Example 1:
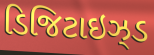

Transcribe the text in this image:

ડિજિટાઇઝ્ડ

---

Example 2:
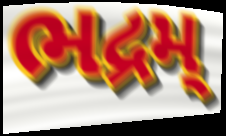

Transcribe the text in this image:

ભદ્રમ્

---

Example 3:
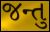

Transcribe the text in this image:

જન્તુ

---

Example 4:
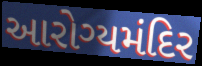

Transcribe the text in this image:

આરોગ્યમંદિર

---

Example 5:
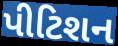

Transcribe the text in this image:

પીટિશન